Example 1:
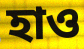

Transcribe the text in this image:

হাও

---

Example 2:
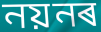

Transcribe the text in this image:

নয়নৰ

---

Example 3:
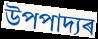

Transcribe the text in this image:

উপপাদ্যৰ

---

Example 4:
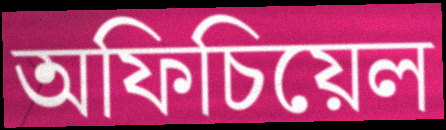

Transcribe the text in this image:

অফিচিয়েল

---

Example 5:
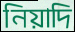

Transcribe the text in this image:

নিয়াদি